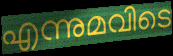
എന്നുമവിടെ